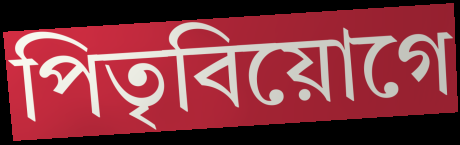
পিতৃবিয়োগে